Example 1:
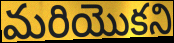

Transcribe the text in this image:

మరియొకని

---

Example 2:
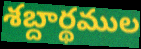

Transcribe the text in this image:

శబ్దార్థముల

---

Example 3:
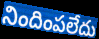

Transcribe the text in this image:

నిందింపలేదు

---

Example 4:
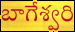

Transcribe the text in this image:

బాగేశ్వరి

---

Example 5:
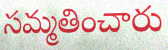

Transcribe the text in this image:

సమ్మతించారు